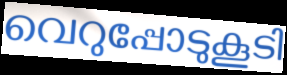
വെറുപ്പോടുകൂടി